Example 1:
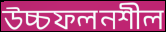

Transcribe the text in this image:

উচ্চফলনশীল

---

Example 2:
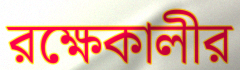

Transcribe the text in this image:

রক্ষেকালীর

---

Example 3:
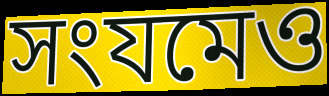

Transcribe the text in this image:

সংযমেও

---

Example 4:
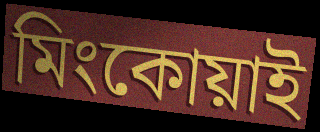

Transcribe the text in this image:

মিংকোয়াই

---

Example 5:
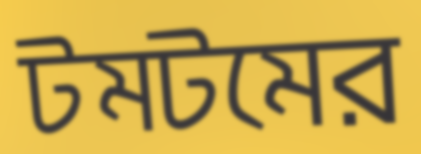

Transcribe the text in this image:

টমটমের